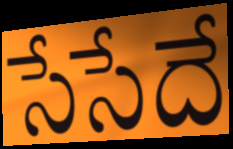
సేసేదే